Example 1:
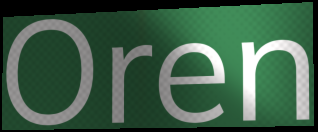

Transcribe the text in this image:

Oren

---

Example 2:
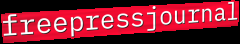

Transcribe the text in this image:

freepressjournal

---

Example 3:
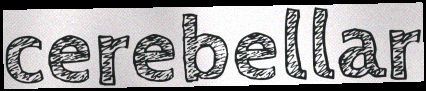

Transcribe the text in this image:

cerebellar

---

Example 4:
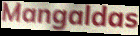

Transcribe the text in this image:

Mangaldas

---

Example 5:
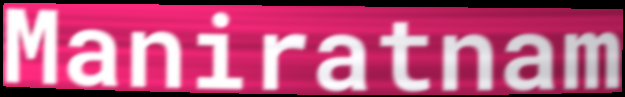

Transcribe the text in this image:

Maniratnam